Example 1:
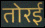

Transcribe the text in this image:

तोरई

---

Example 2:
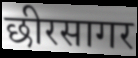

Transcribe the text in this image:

छीरसागर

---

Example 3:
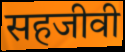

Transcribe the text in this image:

सहजीवी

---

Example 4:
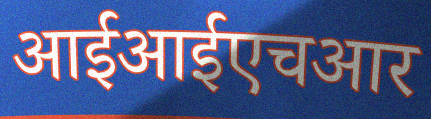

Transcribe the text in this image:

आईआईएचआर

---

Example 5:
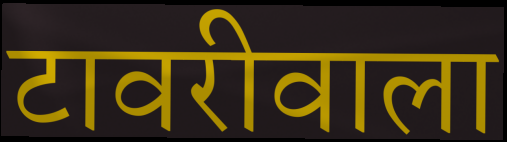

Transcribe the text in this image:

टावरीवाला